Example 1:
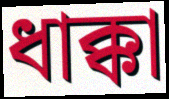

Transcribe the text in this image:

ধাক্কা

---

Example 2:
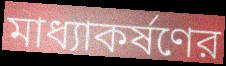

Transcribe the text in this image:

মাধ্যাকর্ষণের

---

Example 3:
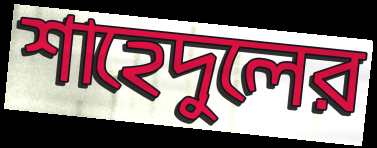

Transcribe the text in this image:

শাহেদুলের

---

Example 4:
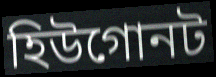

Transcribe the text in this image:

হিউগোনট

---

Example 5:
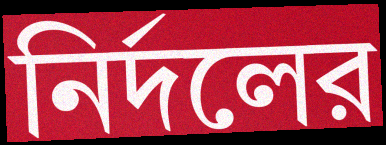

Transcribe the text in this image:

নির্দলের